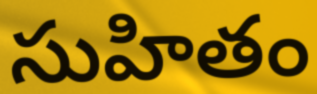
సుహితం